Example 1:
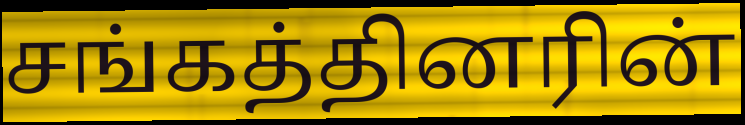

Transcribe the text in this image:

சங்கத்தினரின்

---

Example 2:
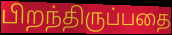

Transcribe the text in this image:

பிறந்திருப்பதை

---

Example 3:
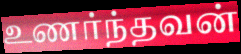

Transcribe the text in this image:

உணர்ந்தவன்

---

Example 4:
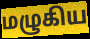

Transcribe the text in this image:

மழுகிய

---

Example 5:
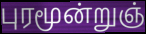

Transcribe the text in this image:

புரமூன்றுஞ்